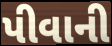
પીવાની